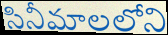
సినీమాలలోని